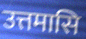
उत्तमासि